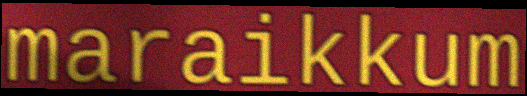
maraikkum